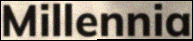
Millennia